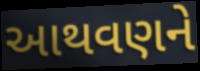
આથવણને